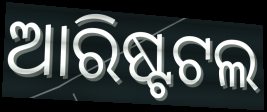
ଆରିଷ୍ଟଟଲ